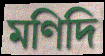
মণিদি